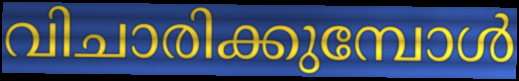
വിചാരിക്കുമ്പോൾ